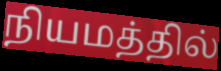
நியமத்தில்